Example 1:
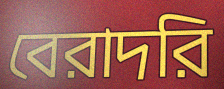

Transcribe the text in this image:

বেরাদরি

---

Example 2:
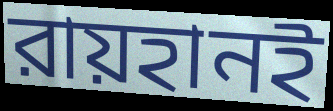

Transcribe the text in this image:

রায়হানই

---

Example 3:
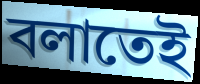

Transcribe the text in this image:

বলাতেই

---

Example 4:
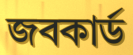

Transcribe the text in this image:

জবকার্ড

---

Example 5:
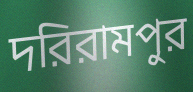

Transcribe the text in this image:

দরিরামপুর